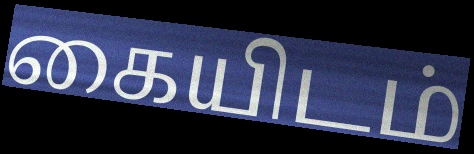
கையிடம்